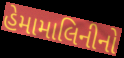
હેમામાલિનીનો